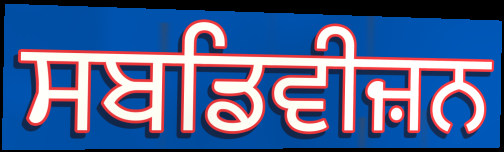
ਸਬਡਿਵੀਜ਼ਨ